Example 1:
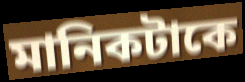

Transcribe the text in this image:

মানিকটাকে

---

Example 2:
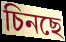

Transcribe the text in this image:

চিনছে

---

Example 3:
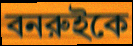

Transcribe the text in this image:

বনরুইকে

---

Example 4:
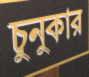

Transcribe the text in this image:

চুনুকার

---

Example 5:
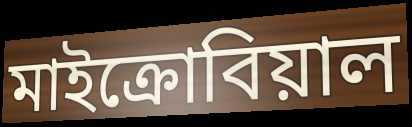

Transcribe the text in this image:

মাইক্রোবিয়াল